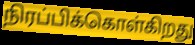
நிரப்பிக்கொள்கிறது